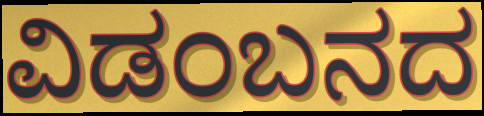
ವಿಡಂಬನದ